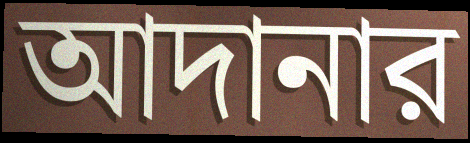
আদানার